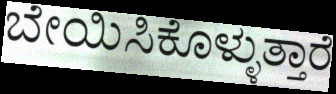
ಬೇಯಿಸಿಕೊಳ್ಳುತ್ತಾರೆ